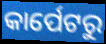
କାର୍ପେଟରୁ